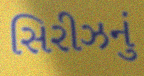
સિરીઝનું